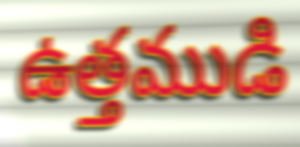
ఉత్తముడి